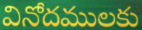
వినోదములకు